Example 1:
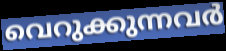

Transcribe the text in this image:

വെറുക്കുന്നവർ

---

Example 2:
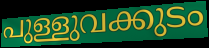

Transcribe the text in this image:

പുള്ളുവക്കുടം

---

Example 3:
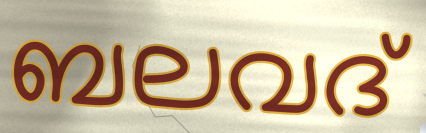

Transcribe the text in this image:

ബലവദ്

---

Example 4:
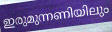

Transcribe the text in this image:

ഇരുമുന്നണിയിലും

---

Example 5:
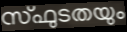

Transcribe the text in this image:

സ്ഫുടതയും